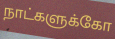
நாட்களுக்கோ